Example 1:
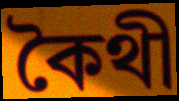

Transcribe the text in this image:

কৈথী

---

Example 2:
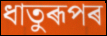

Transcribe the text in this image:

ধাতুৰূপৰ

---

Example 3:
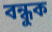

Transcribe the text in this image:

বন্ধুক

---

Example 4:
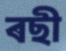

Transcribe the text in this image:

ৰছী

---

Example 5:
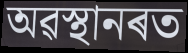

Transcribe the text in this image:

অৱস্থানৰত